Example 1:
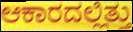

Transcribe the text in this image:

ಆಕಾರದಲ್ಲಿತ್ತು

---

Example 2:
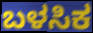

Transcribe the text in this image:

ಬಳಸಿಕ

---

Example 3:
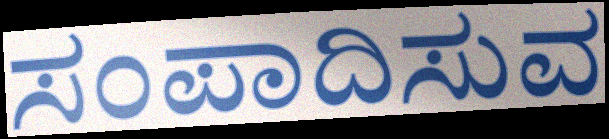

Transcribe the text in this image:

ಸಂಪಾದಿಸುವ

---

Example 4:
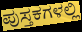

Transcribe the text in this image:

ಪುಸ್ತಕಗಳಲ್ಲಿ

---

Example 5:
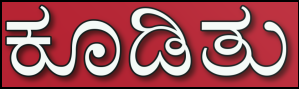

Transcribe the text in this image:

ಕೂಡಿತು